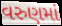
વરુણમાં